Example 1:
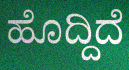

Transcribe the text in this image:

ಹೊದ್ದಿದೆ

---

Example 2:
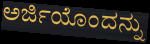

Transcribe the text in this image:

ಅರ್ಜಿಯೊಂದನ್ನು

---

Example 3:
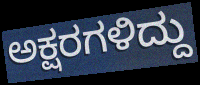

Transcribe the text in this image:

ಅಕ್ಷರಗಳಿದ್ದು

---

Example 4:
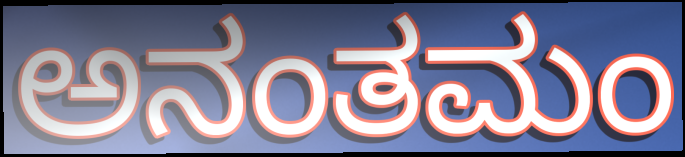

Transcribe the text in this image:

ಅನಂತಮಂ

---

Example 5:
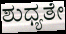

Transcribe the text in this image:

ಶುಧ್ಯತೇ